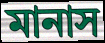
মানাস